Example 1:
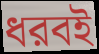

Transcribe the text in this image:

ধরবই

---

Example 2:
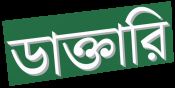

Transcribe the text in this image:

ডাক্তারি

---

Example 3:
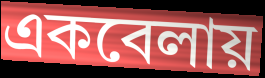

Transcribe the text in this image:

একবেলায়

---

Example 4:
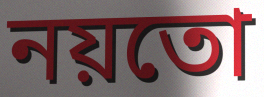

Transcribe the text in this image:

নয়তো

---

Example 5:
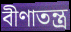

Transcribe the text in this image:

বীণাতন্ত্র